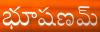
భూషణమ్